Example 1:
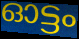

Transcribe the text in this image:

ഓട്ടം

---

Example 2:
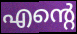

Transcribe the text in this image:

എന്റെ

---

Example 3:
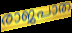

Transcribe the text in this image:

രാജപാത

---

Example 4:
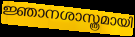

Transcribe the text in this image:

ജ്ഞാനശാസ്ത്രമായി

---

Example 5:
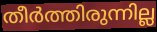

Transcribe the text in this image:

തീർത്തിരുന്നില്ല